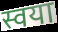
स्वया